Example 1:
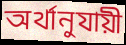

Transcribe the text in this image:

অর্থানুযায়ী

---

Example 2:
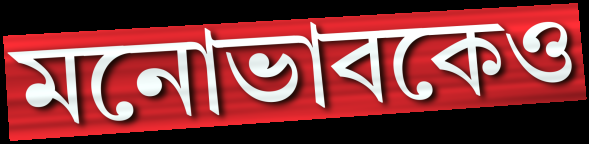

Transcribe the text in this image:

মনোভাবকেও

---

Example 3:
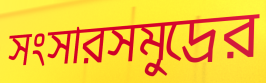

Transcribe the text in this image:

সংসারসমুদ্রের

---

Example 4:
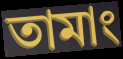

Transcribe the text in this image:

তামাং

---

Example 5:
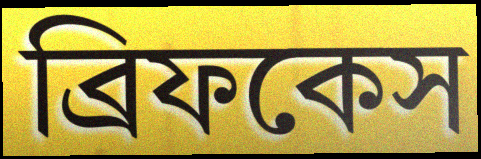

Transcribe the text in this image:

ব্রিফকেস